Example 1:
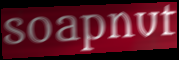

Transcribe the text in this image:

soapnut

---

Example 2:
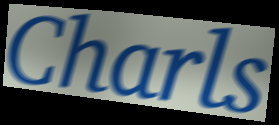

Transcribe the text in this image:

Charls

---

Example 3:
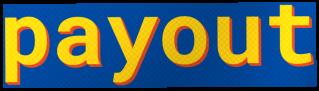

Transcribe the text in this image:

payout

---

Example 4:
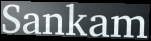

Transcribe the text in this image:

Sankam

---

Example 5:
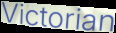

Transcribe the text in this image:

Victorian